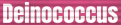
Deinococcus